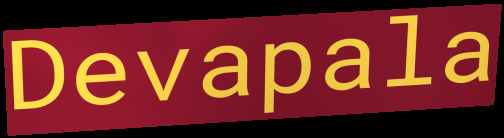
Devapala